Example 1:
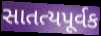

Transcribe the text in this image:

સાતત્યપૂર્વક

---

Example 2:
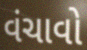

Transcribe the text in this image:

વંચાવો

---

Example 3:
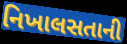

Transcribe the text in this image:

નિખાલસતાની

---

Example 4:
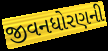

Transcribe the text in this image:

જીવનધોરણની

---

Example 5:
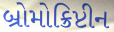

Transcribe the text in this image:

બ્રોમોક્રિપ્ટીન